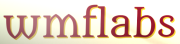
wmflabs